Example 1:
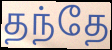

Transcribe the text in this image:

தந்தே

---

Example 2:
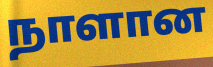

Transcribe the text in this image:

நாளான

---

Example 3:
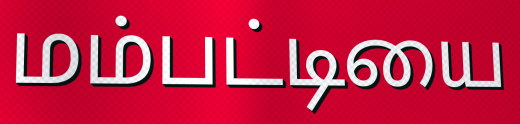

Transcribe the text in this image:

மம்பட்டியை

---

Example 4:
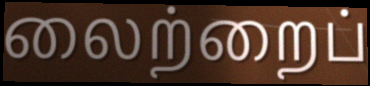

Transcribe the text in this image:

லைற்றைப்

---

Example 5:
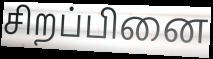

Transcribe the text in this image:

சிறப்பினை